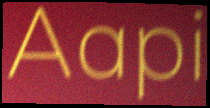
Aapi